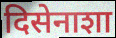
दिसेनाशा